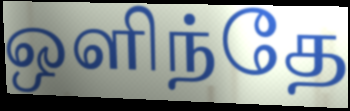
ஒளிந்தே